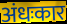
अंधःकार